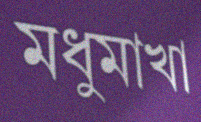
মধুমাখা